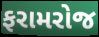
ફરામરોજ